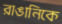
রাঙানিকে